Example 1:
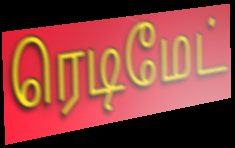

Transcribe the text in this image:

ரெடிமேட்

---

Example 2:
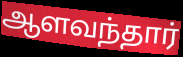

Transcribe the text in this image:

ஆளவந்தார்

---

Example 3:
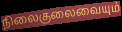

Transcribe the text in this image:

நிலைகுலைவையும்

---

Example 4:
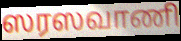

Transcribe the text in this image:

ஸரஸவாணி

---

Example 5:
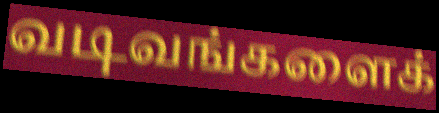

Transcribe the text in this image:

வடிவங்களைக்